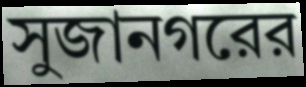
সুজানগরের